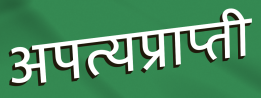
अपत्यप्राप्ती